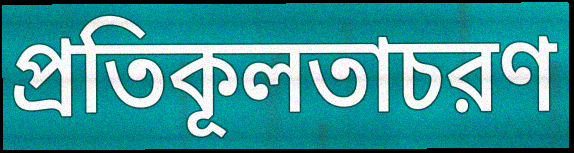
প্রতিকূলতাচরণ